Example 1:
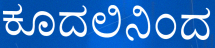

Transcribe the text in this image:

ಕೂದಲಿನಿಂದ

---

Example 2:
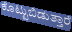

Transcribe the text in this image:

ಕೊಟ್ಟುಬಿಡುತ್ತಾರೆ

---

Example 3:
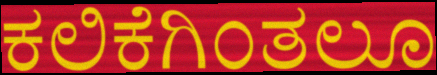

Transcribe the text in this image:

ಕಲಿಕೆಗಿಂತಲೂ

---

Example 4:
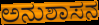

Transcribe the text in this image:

ಅನುಶಾಸನ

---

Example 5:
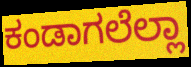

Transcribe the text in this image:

ಕಂಡಾಗಲೆಲ್ಲಾ